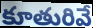
కూతురివే